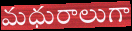
మధురాలుగా